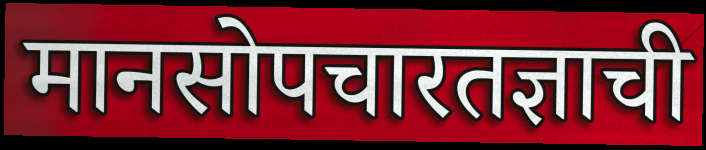
मानसोपचारतज्ञाची